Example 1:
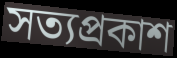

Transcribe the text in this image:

সত্যপ্ৰকাশ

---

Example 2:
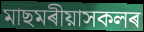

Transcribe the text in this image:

মাছমৰীয়াসকলৰ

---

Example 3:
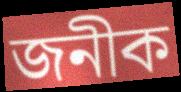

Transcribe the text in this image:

জনীক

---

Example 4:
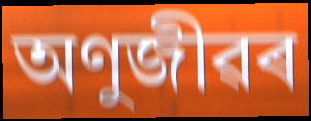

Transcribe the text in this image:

অণুজীৱৰ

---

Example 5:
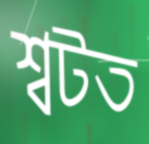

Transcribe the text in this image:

শ্বটত